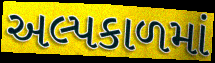
અલ્પકાળમાં